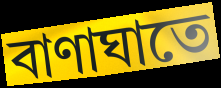
বাণাঘাতে